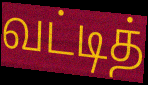
வட்டித்